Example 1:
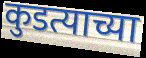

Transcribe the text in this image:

कुडत्याच्या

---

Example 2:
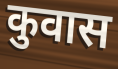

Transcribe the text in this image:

कुवास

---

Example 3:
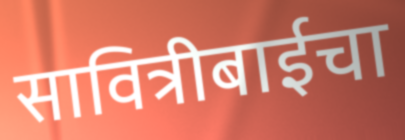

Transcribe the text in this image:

सावित्रीबाईचा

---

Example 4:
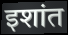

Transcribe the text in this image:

इशांत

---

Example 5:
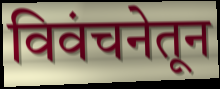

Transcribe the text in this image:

विवंचनेतून